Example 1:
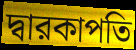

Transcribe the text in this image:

দ্বারকাপতি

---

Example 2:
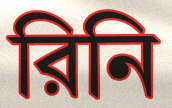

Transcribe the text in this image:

রিনি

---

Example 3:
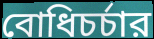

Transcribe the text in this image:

বোধিচর্চার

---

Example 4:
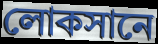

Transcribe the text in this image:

লোকসানে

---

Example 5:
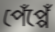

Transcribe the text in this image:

পেঁপ্পেঁ